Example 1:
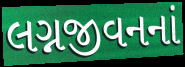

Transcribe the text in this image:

લગ્નજીવનનાં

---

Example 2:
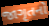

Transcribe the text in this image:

જાગૃતનો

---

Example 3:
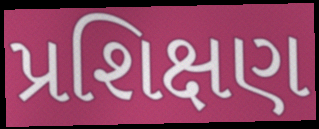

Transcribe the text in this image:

પ્રશિક્ષણ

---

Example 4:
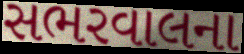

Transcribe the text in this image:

સભરવાલના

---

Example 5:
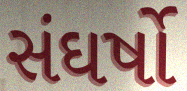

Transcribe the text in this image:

સંઘર્ષો